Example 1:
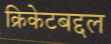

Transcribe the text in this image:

क्रिकेटबद्दल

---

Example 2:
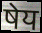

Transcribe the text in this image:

षेय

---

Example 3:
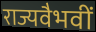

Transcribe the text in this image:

राज्यवैभवीं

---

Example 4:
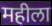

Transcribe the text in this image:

महीला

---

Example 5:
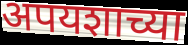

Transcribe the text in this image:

अपयशाच्या